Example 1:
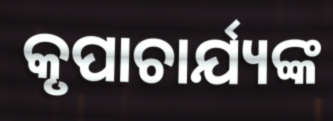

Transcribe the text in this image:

କୃପାଚାର୍ଯ୍ୟଙ୍କ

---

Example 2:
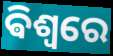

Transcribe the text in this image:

ଵିଶ୍ୱରେ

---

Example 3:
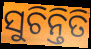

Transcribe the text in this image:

ସୁଚିନ୍ତିତି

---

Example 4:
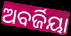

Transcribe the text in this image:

ଅବର୍ଜିୟା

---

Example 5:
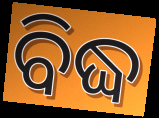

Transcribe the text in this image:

ବିଦ୍ଧ